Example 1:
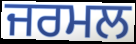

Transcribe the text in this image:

ਜਰਮਲ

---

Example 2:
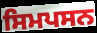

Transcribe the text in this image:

ਸਿਮਪਸਨ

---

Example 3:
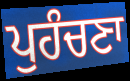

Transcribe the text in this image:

ਪੁਹੰਚਣਾ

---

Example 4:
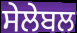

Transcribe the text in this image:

ਸੇਲੇਬਲ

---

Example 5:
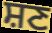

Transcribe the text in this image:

ਸ਼ਣ